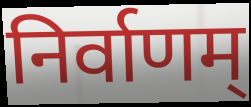
निर्वाणम्